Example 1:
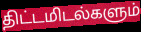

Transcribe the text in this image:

திட்டமிடல்களும்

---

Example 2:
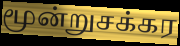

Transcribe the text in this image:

மூன்றுசக்கர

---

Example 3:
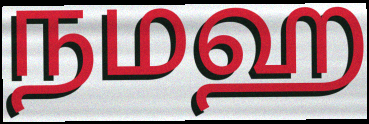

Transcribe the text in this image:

நமஹ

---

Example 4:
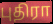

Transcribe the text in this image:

புதிரா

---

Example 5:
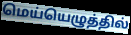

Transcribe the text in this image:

மெய்யெழுத்தில்